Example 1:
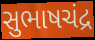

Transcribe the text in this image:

સુભાષચંદ્ર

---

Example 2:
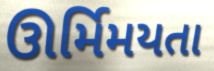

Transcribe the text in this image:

ઊર્મિમયતા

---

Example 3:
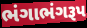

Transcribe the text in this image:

ભંગાભંગરૂપ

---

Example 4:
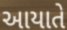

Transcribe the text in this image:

આયાતે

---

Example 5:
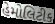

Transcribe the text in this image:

હેમોલિટીક